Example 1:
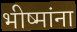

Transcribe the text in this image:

भीष्मांना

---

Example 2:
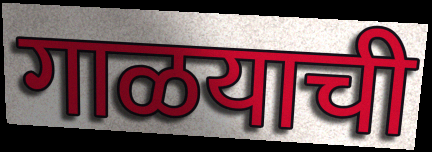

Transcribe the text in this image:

गाळयाची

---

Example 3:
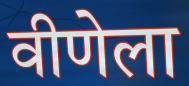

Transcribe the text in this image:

वीणेला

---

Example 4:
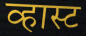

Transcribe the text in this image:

व्हास्ट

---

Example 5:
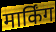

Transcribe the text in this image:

मार्किंग